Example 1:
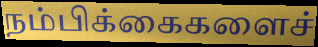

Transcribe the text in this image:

நம்பிக்கைகளைச்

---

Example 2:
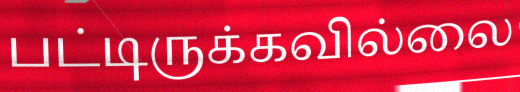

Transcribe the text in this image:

பட்டிருக்கவில்லை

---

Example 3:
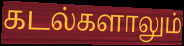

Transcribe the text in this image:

கடல்களாலும்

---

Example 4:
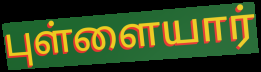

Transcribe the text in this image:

புள்ளையார்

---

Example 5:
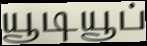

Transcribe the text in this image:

யூடியூப்